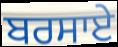
ਬਰਸਾਏ